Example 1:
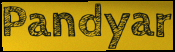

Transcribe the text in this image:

Pandyar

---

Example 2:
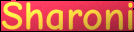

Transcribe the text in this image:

Sharoni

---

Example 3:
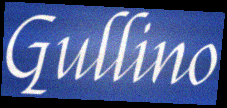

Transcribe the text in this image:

Gullino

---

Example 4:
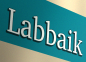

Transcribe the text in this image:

Labbaik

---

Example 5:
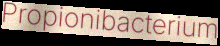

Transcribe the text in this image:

Propionibacterium